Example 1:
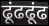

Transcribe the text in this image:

ढूंढढूंढ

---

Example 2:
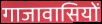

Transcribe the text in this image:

गाजावासियों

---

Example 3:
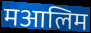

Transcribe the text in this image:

मआलिम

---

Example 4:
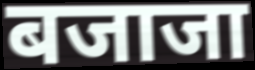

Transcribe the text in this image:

बजाजा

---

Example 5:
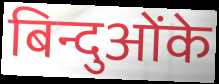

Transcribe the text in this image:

बिन्दुओंके